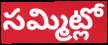
సమ్మిట్లో